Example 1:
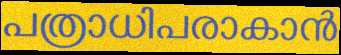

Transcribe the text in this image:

പത്രാധിപരാകാൻ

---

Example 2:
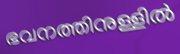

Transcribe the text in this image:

ഭവനത്തിനുള്ളിൽ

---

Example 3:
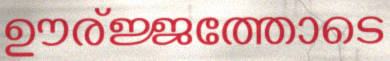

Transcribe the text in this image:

ഊര്ജ്ജത്തോടെ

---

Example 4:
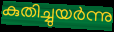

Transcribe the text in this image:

കുതിച്ചുയർന്നു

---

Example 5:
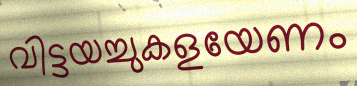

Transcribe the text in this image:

വിട്ടയച്ചുകളയേണം